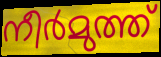
നീർമുത്ത്